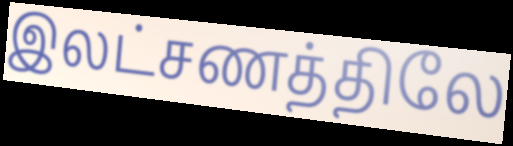
இலட்சணத்திலே